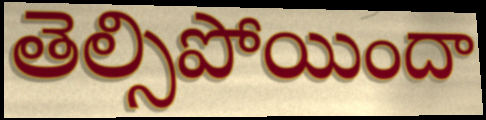
తెల్సిపోయిందా